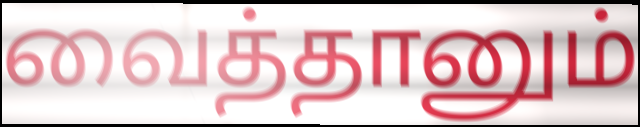
வைத்தானும்